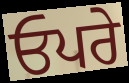
ਓਪਰੇ